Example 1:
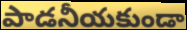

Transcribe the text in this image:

పాడనీయకుండా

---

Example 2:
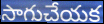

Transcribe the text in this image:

సాగుచేయక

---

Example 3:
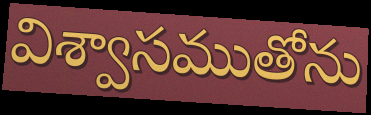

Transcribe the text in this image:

విశ్వాసముతోను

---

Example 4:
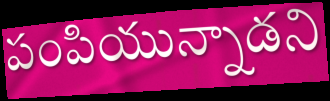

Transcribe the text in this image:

పంపియున్నాడని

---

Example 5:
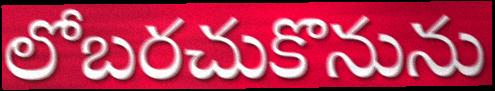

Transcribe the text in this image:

లోబరచుకొనును